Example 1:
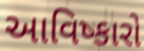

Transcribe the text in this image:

આવિષ્કારો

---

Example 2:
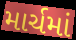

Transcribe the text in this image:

માર્ચમાં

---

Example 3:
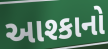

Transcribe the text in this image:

આશ્કાનો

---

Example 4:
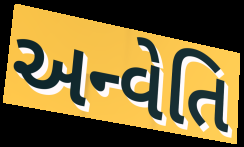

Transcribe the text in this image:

અન્વેતિ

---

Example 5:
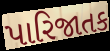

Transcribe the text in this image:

પારિજાતક